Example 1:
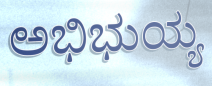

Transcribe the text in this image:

ಅಭಿಭುಯ್ಯ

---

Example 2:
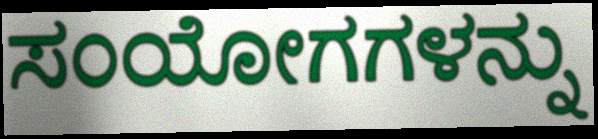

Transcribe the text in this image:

ಸಂಯೋಗಗಳನ್ನು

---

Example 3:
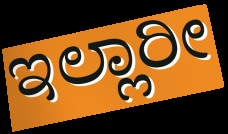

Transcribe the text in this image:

ಇಲ್ಲಾರೀ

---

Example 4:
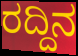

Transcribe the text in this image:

ರದ್ದಿನ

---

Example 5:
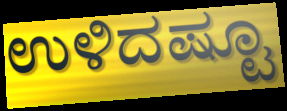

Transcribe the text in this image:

ಉಳಿದಷ್ಟೂ